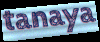
tanaya